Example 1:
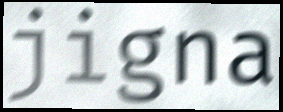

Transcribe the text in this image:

jigna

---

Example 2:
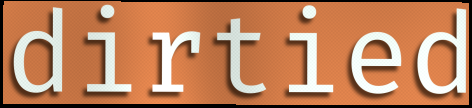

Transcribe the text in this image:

dirtied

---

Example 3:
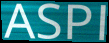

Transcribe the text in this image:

ASPI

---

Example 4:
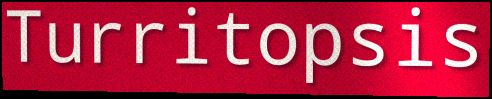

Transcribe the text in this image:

Turritopsis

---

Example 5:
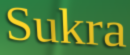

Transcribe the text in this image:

Sukra